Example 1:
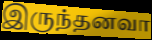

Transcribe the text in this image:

இருந்தனவா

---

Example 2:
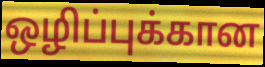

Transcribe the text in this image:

ஒழிப்புக்கான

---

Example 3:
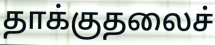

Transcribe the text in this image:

தாக்குதலைச்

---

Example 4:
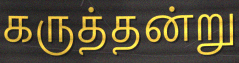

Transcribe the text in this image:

கருத்தன்று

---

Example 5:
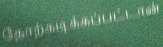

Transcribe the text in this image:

தோற்கடிக்கப்பட்டான்